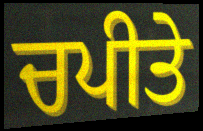
ਚਪੀਤੇ